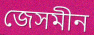
জেসমীন